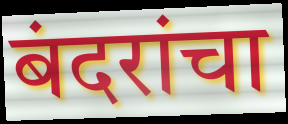
बंदरांचा